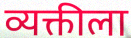
व्यक्तीला